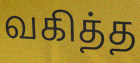
வகித்த